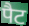
पैट